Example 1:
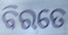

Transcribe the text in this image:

ବିରତେ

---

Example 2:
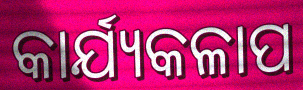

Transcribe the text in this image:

କାର୍ଯ୍ୟକଳାପ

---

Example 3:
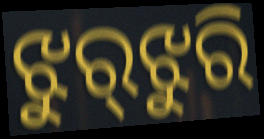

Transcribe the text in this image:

ଝୁର୍‌ଝୁରି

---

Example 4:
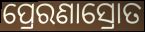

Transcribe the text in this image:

ପ୍ରେରଣାସ୍ରୋତ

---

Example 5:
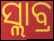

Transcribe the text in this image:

ସ୍ଲାବ୍ର